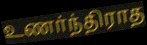
உணர்ந்திராத